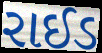
રાઈડ